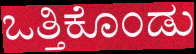
ಒತ್ತಿಕೊಂಡು